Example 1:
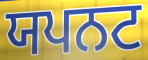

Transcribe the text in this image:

ਯਪਨਟ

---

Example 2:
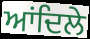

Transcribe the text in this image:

ਆਂਦਿਲੇ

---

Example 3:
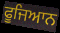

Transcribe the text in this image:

ਫੂਜਿਆਨ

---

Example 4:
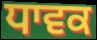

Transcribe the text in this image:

ਧਾਵਕ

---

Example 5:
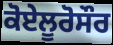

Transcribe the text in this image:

ਕੋਏਲੂਰੋਸੌਰ